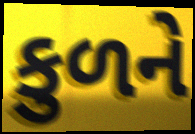
કુળને